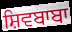
ਸ਼ਿਵਬਾਬਾ